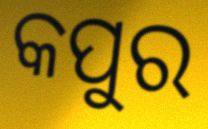
କପୁର